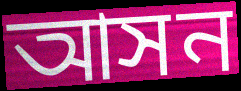
আসন